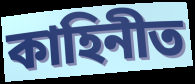
কাহিনীত